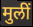
मुलीं